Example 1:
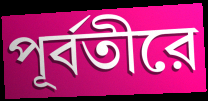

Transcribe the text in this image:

পূর্বতীরে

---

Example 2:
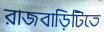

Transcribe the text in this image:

রাজবাড়িটিতে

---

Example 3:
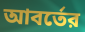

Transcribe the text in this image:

আবর্তের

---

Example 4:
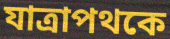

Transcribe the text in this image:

যাত্রাপথকে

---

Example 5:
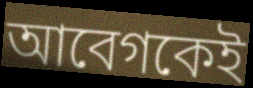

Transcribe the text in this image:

আবেগকেই